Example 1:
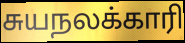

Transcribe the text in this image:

சுயநலக்காரி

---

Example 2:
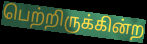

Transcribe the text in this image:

பெற்றிருக்கின்ற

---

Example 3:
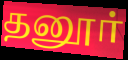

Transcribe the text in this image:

தனூர்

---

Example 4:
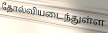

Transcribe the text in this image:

தோல்வியடைந்துள்ள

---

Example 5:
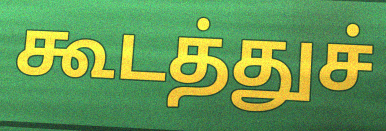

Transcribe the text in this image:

கூடத்துச்